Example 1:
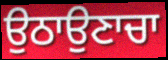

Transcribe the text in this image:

ਉਠਾਉਣਾਚਾ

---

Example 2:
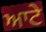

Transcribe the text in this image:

ਆਟੇ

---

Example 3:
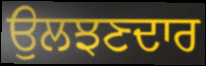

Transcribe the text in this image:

ਉਲਝਣਦਾਰ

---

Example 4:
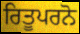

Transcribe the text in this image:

ਰਿਤੂਪਰਨੋ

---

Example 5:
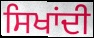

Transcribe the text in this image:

ਸਿਖਾਂਦੀ